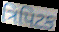
ત્રિપિટક